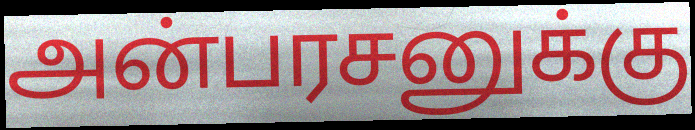
அன்பரசனுக்கு